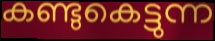
കണ്ടുകെട്ടുന്ന